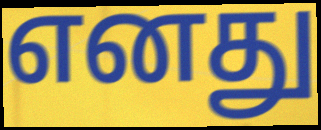
எனது